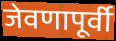
जेवणापूर्वी